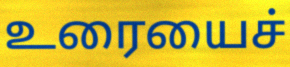
உரையைச்